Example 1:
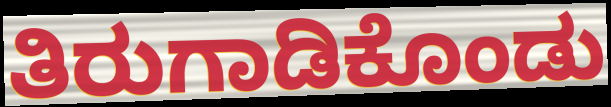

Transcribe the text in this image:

ತಿರುಗಾಡಿಕೊಂಡು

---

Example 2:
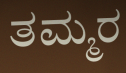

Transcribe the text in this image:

ತಮ್ಮರ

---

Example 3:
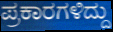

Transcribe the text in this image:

ಪ್ರಕಾರಗಳಿದ್ದು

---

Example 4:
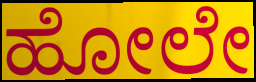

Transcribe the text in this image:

ಹೋಲೇ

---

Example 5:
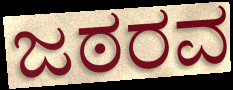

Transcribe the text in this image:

ಜಠರವ